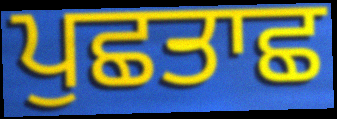
ਪੁਛਤਾਛ